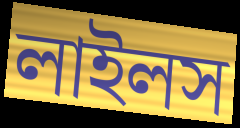
লাইলস